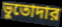
ভুতোদার